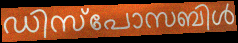
ഡിസ്പോസബിൾ